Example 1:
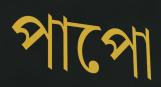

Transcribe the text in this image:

পাপো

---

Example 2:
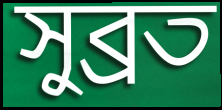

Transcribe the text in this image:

সুব্রত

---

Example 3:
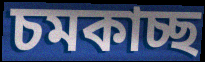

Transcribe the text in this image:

চমকাচ্ছ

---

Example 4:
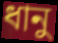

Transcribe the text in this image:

ধানু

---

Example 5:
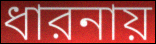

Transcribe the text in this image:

ধারনায়